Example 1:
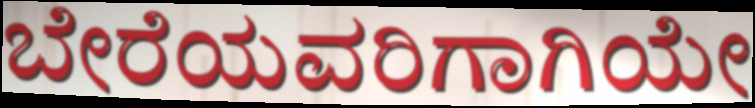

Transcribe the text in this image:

ಬೇರೆಯವರಿಗಾಗಿಯೇ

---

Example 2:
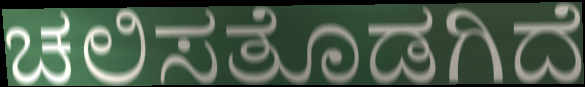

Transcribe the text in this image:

ಚಲಿಸತೊಡಗಿದೆ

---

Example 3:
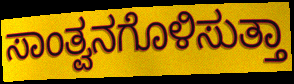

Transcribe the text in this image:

ಸಾಂತ್ವನಗೊಳಿಸುತ್ತಾ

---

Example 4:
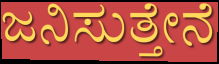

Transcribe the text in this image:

ಜನಿಸುತ್ತೇನೆ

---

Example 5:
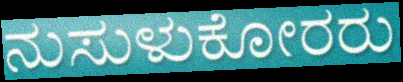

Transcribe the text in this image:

ನುಸುಳುಕೋರರು